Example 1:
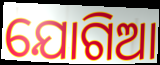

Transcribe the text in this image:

ଯୋଗିଆ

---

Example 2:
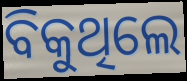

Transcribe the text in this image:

ବିକୁଥିଲେ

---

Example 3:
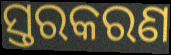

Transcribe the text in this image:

ସ୍ତରକରଣ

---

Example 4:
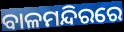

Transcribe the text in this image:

ବାଳମନ୍ଦିରରେ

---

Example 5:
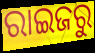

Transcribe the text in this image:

ରାଇଜରୁ